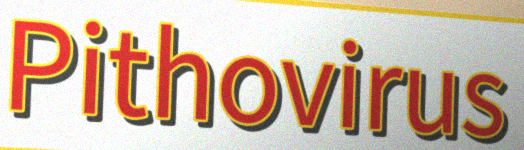
Pithovirus